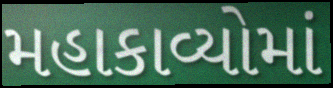
મહાકાવ્યોમાં